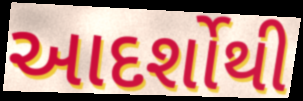
આદર્શોથી